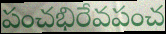
పంచభిరేవపంచ